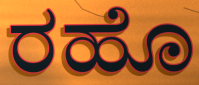
ರಹೊ